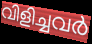
വിളിച്ചവർ